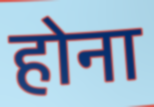
होना